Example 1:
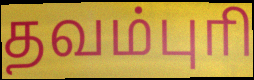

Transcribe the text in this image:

தவம்புரி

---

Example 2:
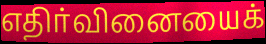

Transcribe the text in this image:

எதிர்வினையைக்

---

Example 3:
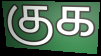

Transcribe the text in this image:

குக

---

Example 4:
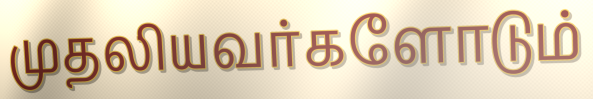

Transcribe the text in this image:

முதலியவர்களோடும்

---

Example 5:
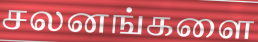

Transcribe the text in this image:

சலனங்களை